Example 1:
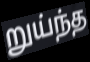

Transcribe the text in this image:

றுய்ந்த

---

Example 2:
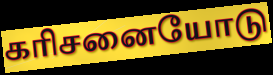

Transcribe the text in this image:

கரிசனையோடு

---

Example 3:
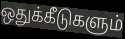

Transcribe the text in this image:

ஒதுக்கீடுகளும்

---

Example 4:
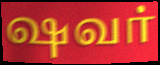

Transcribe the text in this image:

ஷவர்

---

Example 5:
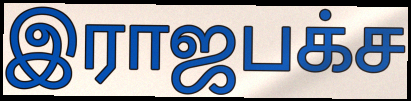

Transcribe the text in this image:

இராஜபக்ச